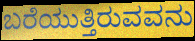
ಬರೆಯುತ್ತಿರುವವನು